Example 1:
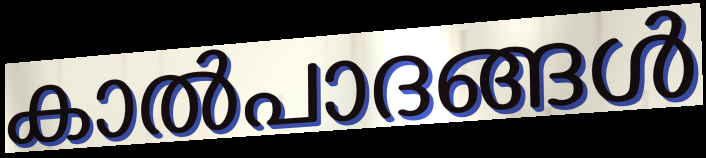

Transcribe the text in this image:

കാൽപാദങ്ങൾ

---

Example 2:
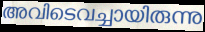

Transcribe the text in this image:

അവിടെവച്ചായിരുന്നു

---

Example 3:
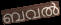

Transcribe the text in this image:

ബവൽ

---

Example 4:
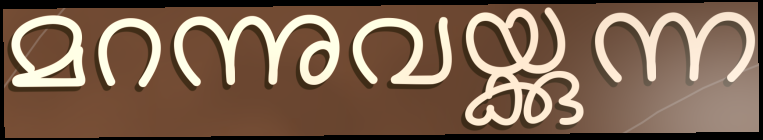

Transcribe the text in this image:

മറന്നുവയ്ക്കുന്ന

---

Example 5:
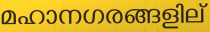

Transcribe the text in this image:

മഹാനഗരങ്ങളില്